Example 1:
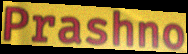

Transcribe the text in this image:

Prashno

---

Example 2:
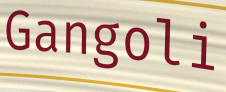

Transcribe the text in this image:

Gangoli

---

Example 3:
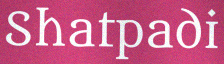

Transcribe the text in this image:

Shatpadi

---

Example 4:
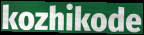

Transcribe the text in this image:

kozhikode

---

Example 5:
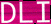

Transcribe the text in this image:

DLI